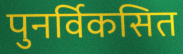
पुनर्विकसित